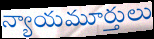
న్యాయమూర్తులు